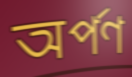
অৰ্পণ